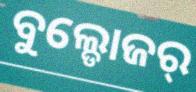
ବୁଲ୍ଡୋଜର୍